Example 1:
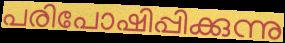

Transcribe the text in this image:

പരിപോഷിപ്പിക്കുന്നു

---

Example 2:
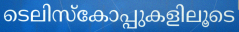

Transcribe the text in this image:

ടെലിസ്കോപ്പുകളിലൂടെ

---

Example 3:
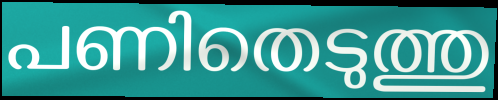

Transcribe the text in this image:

പണിതെടുത്തു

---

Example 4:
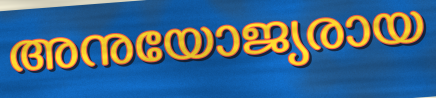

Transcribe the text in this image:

അനുയോജ്യരായ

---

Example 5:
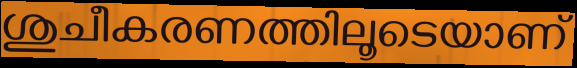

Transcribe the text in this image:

ശുചീകരണത്തിലൂടെയാണ്